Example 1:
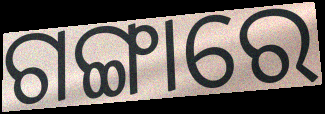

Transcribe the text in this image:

ଗଙ୍ଗାରେ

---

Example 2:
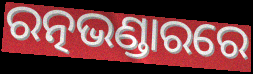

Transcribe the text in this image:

ରତ୍ନଭଣ୍ଡାରରେ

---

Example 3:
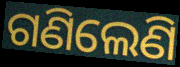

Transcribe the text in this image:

ଗଣିଲେଣି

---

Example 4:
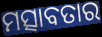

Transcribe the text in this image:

ମତ୍ସାବତାର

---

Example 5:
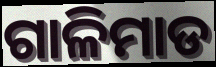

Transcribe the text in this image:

ଗାଳିମାଡ